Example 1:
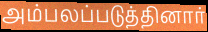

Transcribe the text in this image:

அம்பலப்படுத்தினார்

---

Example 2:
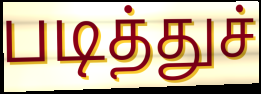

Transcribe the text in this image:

படித்துச்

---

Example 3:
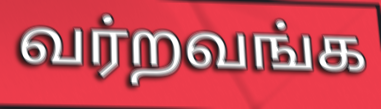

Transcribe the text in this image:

வர்றவங்க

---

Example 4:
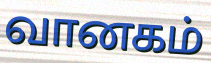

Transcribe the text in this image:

வானகம்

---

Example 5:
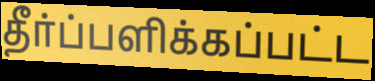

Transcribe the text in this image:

தீர்ப்பளிக்கப்பட்ட